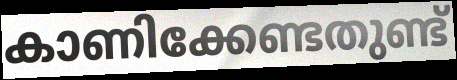
കാണിക്കേണ്ടതുണ്ട്